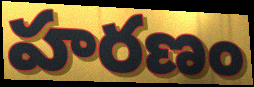
హరణం